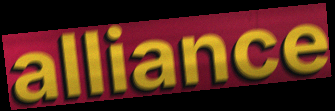
alliance